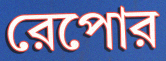
রেপোর